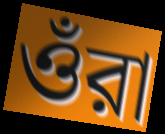
ওঁরা